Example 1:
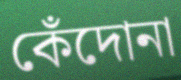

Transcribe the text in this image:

কেঁদোনা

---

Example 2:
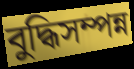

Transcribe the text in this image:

বুদ্ধিসম্পন্ন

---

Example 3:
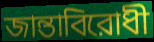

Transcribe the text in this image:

জান্তাবিরোধী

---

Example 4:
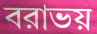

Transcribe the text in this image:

বরাভয়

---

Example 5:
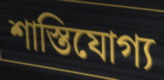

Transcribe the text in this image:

শাস্তিযোগ্য